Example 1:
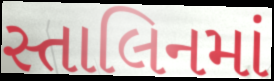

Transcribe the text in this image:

સ્તાલિનમાં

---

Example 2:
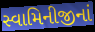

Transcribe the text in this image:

સ્વામિનીજીનાં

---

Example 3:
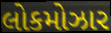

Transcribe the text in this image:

લોકમોઝાર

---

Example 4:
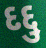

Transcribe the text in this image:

દદ્દુ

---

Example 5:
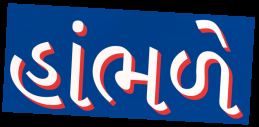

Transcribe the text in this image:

હાંભળે